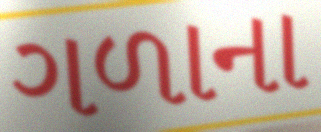
ગળાના